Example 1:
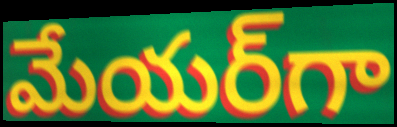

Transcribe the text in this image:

మేయర్‌గా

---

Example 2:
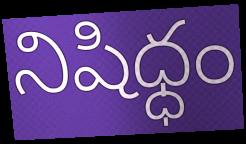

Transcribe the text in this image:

నిషిధ్ధం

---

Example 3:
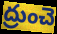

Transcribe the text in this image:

ద్రుంచె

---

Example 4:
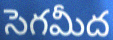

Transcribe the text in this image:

సెగమీద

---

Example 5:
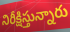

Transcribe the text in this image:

నిరీక్షిస్తున్నారు